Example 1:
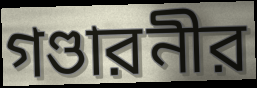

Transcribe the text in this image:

গণ্ডারনীর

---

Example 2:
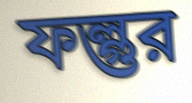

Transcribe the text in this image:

ফল্গুর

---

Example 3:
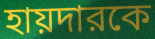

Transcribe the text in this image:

হায়দারকে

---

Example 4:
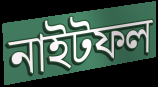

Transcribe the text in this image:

নাইটফল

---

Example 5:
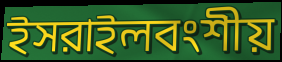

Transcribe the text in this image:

ইসরাইলবংশীয়